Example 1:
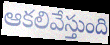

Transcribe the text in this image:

ఆకలివేస్తుంది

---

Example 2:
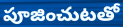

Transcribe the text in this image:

పూజించుటతో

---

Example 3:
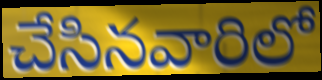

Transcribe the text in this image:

చేసినవారిలో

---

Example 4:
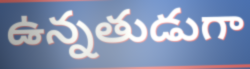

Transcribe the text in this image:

ఉన్నతుడుగా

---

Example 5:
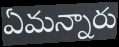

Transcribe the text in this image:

ఏమన్నారు